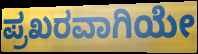
ಪ್ರಖರವಾಗಿಯೇ